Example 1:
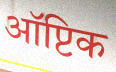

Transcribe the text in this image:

ऑप्टिक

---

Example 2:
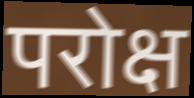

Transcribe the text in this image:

परोक्ष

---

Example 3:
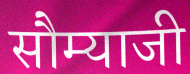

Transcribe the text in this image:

सौम्याजी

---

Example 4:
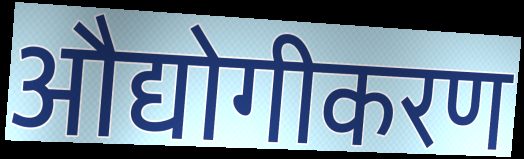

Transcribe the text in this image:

औद्योगीकरण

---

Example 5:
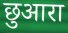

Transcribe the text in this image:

छुआरा